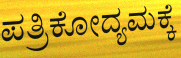
ಪತ್ರಿಕೋದ್ಯಮಕ್ಕೆ